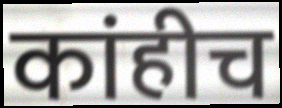
कांहीच